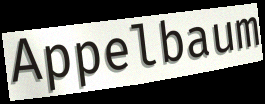
Appelbaum